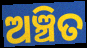
ଅଞ୍ଚିତ